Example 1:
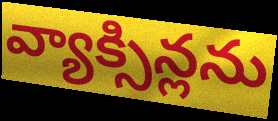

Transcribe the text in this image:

వ్యాక్సిన్లను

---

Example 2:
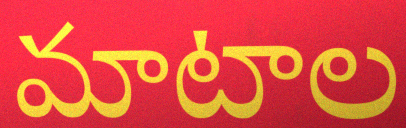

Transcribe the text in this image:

మాటాల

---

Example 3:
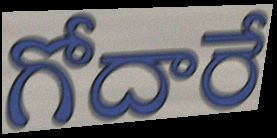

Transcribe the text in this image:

గోదారే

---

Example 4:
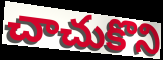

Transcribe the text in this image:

చాచుకొని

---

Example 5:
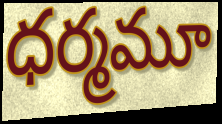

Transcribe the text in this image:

ధర్మమూ